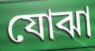
যোঝা